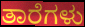
ತಾರೆಗಳು